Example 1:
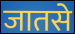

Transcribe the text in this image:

जातसे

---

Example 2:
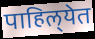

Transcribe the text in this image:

पाहिल्येत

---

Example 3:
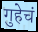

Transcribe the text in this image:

गुहेचं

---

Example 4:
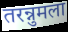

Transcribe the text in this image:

तरन्नुमला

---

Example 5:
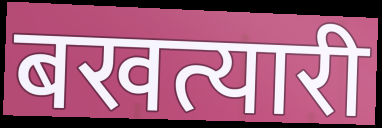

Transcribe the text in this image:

बखत्यारी